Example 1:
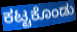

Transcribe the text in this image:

ಕಟ್ಟಕೊಂಡು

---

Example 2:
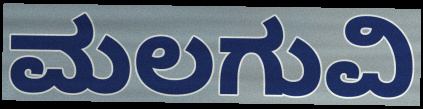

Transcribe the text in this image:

ಮಲಗುವಿ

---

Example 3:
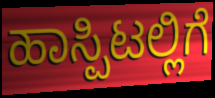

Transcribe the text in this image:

ಹಾಸ್ಪಿಟಲ್ಲಿಗೆ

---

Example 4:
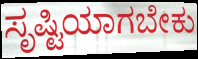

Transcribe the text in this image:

ಸೃಷ್ಟಿಯಾಗಬೇಕು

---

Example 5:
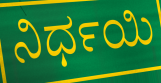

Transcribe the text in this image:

ನಿರ್ಧಯಿ